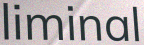
liminal